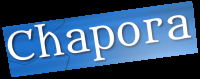
Chapora